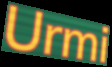
Urmi